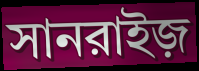
সানরাইজ়